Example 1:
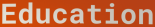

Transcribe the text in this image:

Education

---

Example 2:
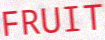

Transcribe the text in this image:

FRUIT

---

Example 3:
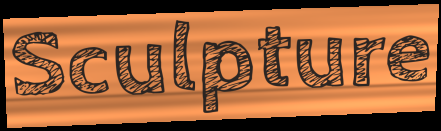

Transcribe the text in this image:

Sculpture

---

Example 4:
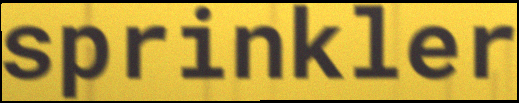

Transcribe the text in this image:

sprinkler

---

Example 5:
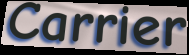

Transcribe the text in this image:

Carrier